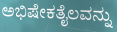
ಅಭಿಷೇಕತೈಲವನ್ನು